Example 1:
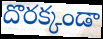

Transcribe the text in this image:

దొరక్కండా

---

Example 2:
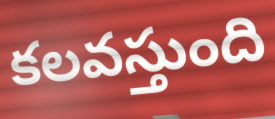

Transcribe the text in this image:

కలవస్తుంది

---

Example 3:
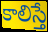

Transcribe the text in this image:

కాలిస్తే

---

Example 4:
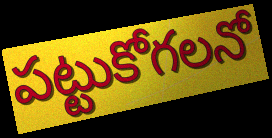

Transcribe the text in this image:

పట్టుకోగలనో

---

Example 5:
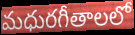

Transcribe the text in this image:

మధురగీతాలలో